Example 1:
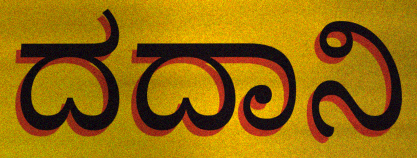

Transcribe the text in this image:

ದದಾನಿ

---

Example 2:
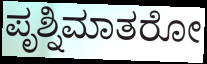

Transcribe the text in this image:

ಪೃಶ್ನಿಮಾತರೋ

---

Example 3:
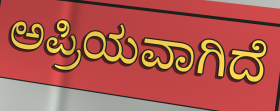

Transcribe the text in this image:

ಅಪ್ರಿಯವಾಗಿದೆ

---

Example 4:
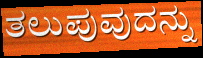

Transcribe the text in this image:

ತಲುಪುವುದನ್ನು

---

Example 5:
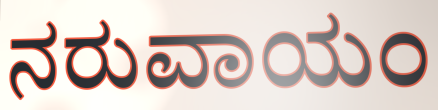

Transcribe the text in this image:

ನರುವಾಯಂ